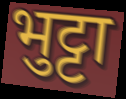
भुट्टा